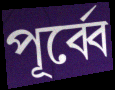
পূর্ব্বে